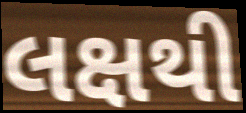
લક્ષથી